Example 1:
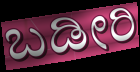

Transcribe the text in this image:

ಬಡೀರಿ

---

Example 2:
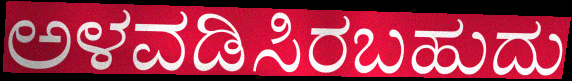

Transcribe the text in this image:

ಅಳವಡಿಸಿರಬಹುದು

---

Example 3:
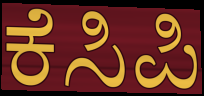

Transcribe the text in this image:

ಕೆಸಿಪಿ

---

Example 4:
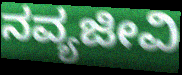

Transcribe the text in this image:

ನವ್ಯಜೀವಿ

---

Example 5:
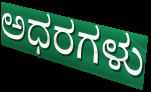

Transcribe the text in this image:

ಅಧರಗಳು